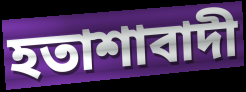
হতাশাবাদী